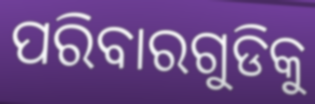
ପରିବାରଗୁଡିକୁ